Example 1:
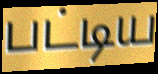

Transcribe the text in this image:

பட்டிய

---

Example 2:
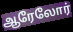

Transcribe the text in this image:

ஆரேலோர்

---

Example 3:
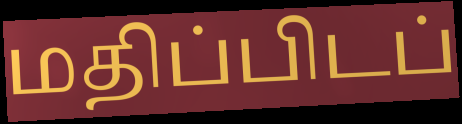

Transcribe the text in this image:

மதிப்பிடப்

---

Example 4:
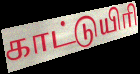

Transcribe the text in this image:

காட்டுயிரி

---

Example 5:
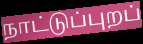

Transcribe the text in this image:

நாட்டுப்புறப்